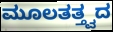
ಮೂಲತತ್ತ್ವದ